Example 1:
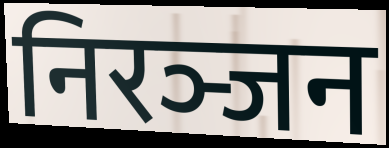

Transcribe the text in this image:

निरञ्जन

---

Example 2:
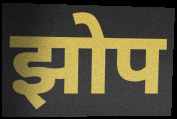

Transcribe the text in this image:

झोप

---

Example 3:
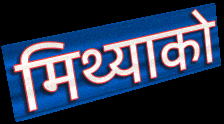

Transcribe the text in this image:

मिथ्याको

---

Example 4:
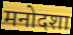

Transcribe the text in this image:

मनोदशा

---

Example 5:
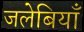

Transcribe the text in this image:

जलेबियाँ